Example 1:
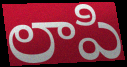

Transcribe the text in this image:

లాపి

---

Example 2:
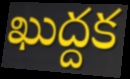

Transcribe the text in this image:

ఖుద్దక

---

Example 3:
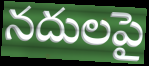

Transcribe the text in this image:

నదులపై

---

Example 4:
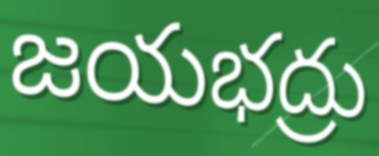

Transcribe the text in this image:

జయభద్రు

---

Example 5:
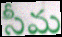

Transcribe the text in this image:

సీమ